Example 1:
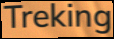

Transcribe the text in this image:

Treking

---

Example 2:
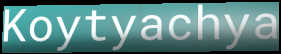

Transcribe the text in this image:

Koytyachya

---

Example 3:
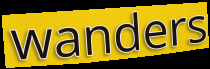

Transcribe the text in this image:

wanders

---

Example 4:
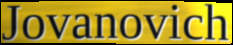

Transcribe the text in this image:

Jovanovich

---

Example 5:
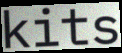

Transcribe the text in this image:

kits